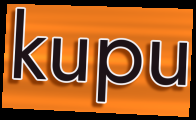
kupu